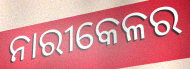
ନାରୀକେଳର